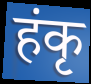
हंकृ